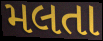
મલતા